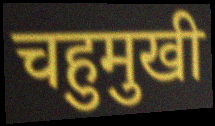
चहुमुखी